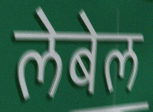
लेबेल